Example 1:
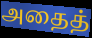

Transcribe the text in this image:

அதைத்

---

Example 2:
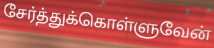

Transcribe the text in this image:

சேர்த்துக்கொள்ளுவேன்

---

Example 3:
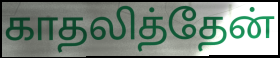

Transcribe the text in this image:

காதலித்தேன்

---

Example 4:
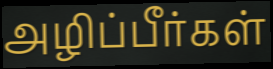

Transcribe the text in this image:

அழிப்பீர்கள்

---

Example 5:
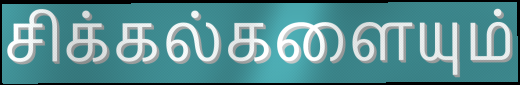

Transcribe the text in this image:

சிக்கல்களையும்